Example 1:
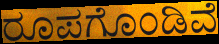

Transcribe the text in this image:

ರೂಪಗೊಂಡಿವೆ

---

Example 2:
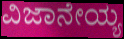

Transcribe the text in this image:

ವಿಜಾನೇಯ್ಯ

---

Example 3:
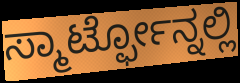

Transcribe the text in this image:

ಸ್ಮಾರ್ಟ್ಫೋನ್ನಲ್ಲಿ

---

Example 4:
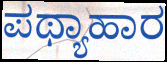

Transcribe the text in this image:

ಪಥ್ಯಾಹಾರ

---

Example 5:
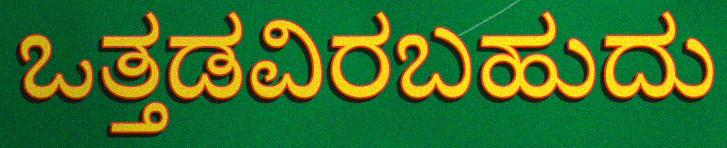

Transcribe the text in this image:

ಒತ್ತಡವಿರಬಹುದು